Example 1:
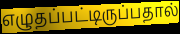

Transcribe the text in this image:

எழுதப்பட்டிருப்பதால்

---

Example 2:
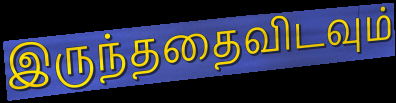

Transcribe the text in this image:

இருந்ததைவிடவும்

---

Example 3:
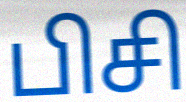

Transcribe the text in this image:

பிசி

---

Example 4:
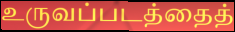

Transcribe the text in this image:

உருவப்படத்தைத்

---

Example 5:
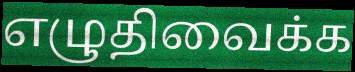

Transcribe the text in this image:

எழுதிவைக்க